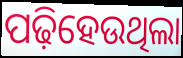
ପଢ଼ିହେଉଥିଲା